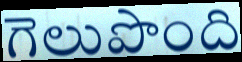
గెలుపొంది